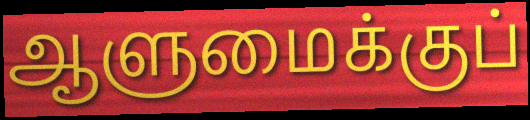
ஆளுமைக்குப்